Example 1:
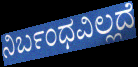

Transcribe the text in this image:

ನಿರ್ಬಂಧವಿಲ್ಲದೆ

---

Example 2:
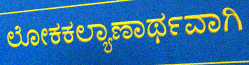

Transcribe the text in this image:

ಲೋಕಕಲ್ಯಾಣಾರ್ಥವಾಗಿ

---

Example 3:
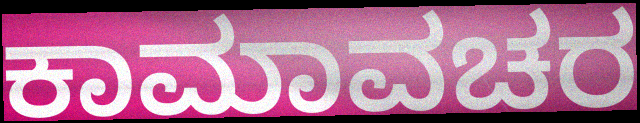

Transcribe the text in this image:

ಕಾಮಾವಚರ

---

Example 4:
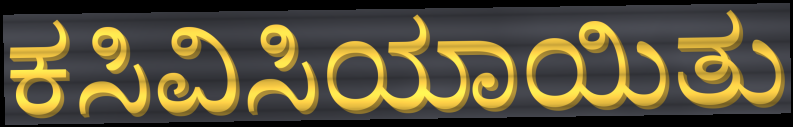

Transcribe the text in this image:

ಕಸಿವಿಸಿಯಾಯಿತು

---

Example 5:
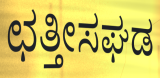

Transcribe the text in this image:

ಛತ್ತೀಸಘಡ